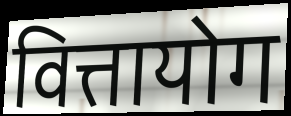
वित्तायोग